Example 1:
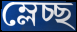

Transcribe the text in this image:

ম্লেচ্ছ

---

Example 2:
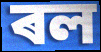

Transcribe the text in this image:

ৰল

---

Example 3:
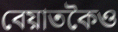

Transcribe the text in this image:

বেয়াতকৈও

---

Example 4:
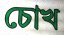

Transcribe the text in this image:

চোখ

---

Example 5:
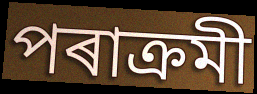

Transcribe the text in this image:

পৰাক্ৰমী